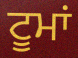
ਟੂਮਾਂ